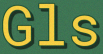
Gls